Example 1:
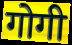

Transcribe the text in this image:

गोगी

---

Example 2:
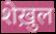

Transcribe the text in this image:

शेख़ुल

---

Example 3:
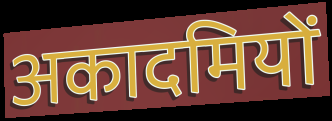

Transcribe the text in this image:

अकादमियों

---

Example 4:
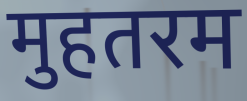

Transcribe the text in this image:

मुहतरम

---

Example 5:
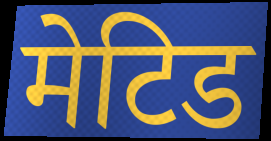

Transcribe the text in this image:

मेटिड